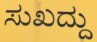
ಸುಖದ್ದು